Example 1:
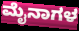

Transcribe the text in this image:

ಮೈನಾಗಳ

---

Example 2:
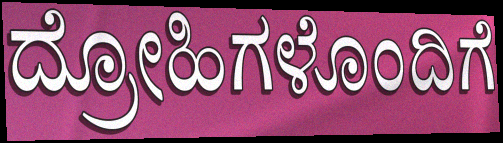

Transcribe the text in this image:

ದ್ರೋಹಿಗಳೊಂದಿಗೆ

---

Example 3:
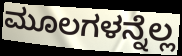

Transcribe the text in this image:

ಮೂಲಗಳನ್ನೆಲ್ಲ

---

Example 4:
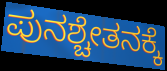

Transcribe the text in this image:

ಪುನಶ್ಚೇತನಕ್ಕೆ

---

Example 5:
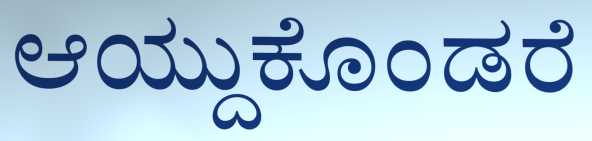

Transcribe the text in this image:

ಆಯ್ದುಕೊಂಡರೆ